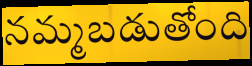
నమ్మబడుతోంది